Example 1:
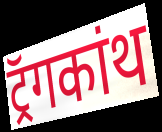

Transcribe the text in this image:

ट्रॅगकांथ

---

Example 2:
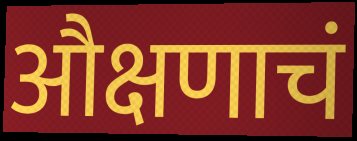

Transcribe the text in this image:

औक्षणाचं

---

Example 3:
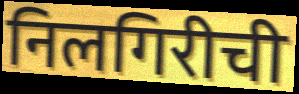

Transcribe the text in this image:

निलगिरीची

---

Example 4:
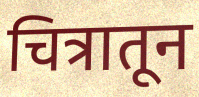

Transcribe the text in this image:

चित्रातून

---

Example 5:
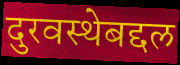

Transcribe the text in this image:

दुरवस्थेबद्दल